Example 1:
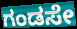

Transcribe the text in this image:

ಗಂಡಸೇ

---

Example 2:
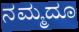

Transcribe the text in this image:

ನಮ್ಮದೂ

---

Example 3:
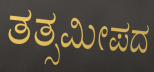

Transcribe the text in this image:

ತತ್ಸಮೀಪದ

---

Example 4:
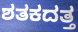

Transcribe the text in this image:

ಶತಕದತ್ತ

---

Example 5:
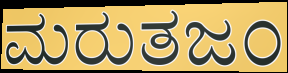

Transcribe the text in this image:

ಮರುತಜಂ